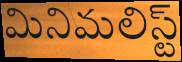
మినిమలిస్ట్